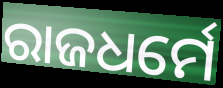
ରାଜଧର୍ମେ